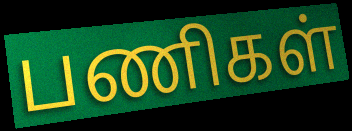
பணிகள்